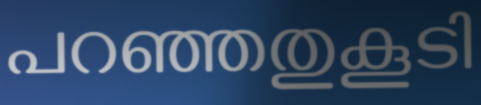
പറഞ്ഞതുകൂടി